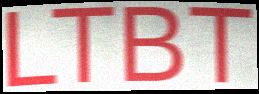
LTBT